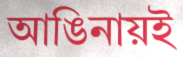
আঙিনায়ই